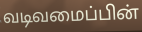
வடிவமைப்பின்